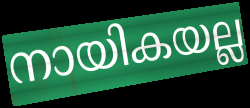
നായികയല്ല